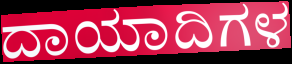
ದಾಯಾದಿಗಳ